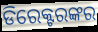
ଡିରେକ୍ଟରଙ୍କର